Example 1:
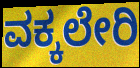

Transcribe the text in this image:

ವಕ್ಕಲೇರಿ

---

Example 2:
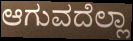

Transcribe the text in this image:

ಆಗುವದೆಲ್ಲಾ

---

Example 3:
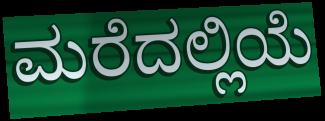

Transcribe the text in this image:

ಮರೆದಲ್ಲಿಯೆ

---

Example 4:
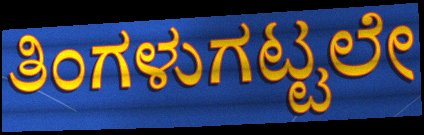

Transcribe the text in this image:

ತಿಂಗಳುಗಟ್ಟಲೇ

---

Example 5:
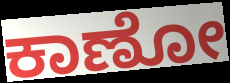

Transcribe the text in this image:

ಕಾಣೋ